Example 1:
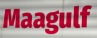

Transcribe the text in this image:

Maagulf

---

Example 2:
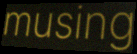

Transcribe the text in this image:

musing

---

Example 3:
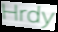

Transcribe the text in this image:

Hrdy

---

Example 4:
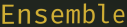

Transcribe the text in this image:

Ensemble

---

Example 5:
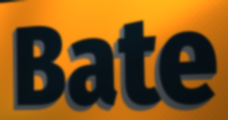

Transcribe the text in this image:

Bate